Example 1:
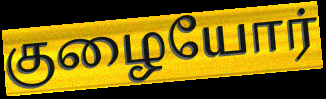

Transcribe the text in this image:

குழையோர்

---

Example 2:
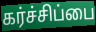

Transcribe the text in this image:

கர்ச்சிப்பை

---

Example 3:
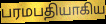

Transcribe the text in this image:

பரமபதியாகிய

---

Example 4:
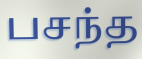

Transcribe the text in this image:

பசந்த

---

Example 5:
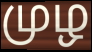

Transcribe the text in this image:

முழ